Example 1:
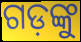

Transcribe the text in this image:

ଗଡ଼ଙ୍କୁ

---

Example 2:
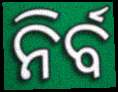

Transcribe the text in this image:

ନିର୍ବ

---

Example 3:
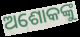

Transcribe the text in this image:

ଅଶୋକଙ୍କୁ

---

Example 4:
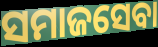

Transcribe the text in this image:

ସମାଜସେବା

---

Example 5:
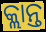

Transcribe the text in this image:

କ୍ଲାନ୍ତ